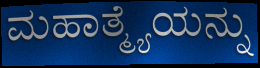
ಮಹಾತ್ಮ್ಯೆಯನ್ನು